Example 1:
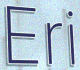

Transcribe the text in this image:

Eri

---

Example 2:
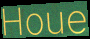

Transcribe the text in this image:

Houe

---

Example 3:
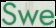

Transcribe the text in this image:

Swe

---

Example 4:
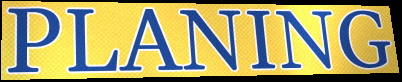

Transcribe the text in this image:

PLANING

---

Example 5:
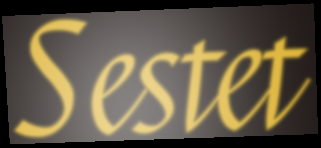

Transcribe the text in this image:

Sestet